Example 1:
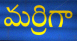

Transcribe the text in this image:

మర్రిగా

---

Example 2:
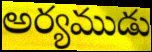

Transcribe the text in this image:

అర్యముడు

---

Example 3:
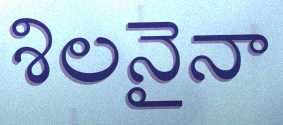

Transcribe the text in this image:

శిలనైనా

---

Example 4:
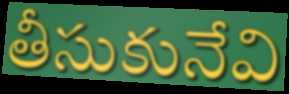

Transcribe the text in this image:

తీసుకునేవి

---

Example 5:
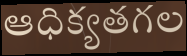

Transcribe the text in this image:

ఆధిక్యతగల